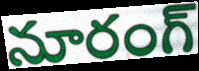
నూరంగ్